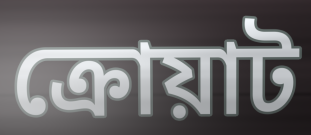
ক্রোয়াট